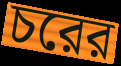
চরের